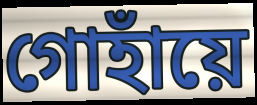
গোহাঁয়ে